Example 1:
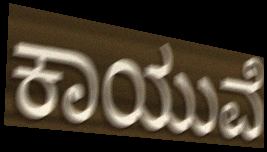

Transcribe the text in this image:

ಕಾಯುವೆ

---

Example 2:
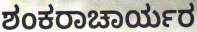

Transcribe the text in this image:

ಶಂಕರಾಚಾರ್ಯರ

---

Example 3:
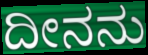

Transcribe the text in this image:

ದೀನನು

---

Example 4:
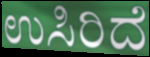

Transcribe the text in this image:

ಉಸಿರಿದೆ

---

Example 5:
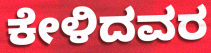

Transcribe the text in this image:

ಕೇಳಿದವರ